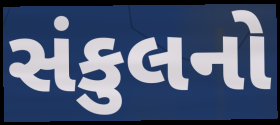
સંકુલનો